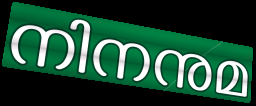
നിനനുമ